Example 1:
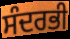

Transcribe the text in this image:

ਸੰਦਰਭੀ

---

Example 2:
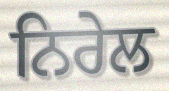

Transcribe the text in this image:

ਨਿਰੇਲ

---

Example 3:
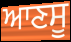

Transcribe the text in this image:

ਆਣਸੂ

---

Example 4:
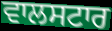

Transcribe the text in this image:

ਵਾਲਸਟਾਰ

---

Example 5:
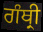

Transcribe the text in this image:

ਗੰਥ੍ਰੀ